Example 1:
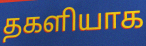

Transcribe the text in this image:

தகளியாக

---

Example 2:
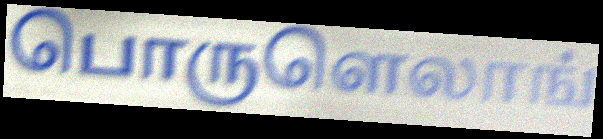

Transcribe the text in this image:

பொருளெலாங்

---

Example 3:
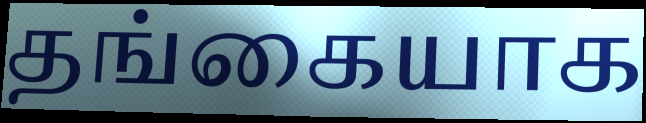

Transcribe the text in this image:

தங்கையாக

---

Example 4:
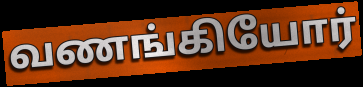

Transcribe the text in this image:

வணங்கியோர்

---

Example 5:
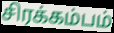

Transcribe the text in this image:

சிரக்கம்பம்